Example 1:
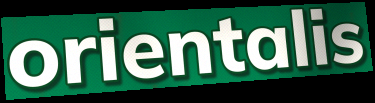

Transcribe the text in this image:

orientalis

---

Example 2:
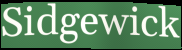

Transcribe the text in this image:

Sidgewick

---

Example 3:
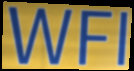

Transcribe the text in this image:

WFI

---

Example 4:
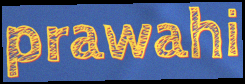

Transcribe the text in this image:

prawahi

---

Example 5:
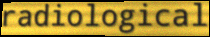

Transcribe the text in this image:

radiological